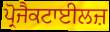
ਪ੍ਰੋਜੈਕਟਾਈਲਜ਼